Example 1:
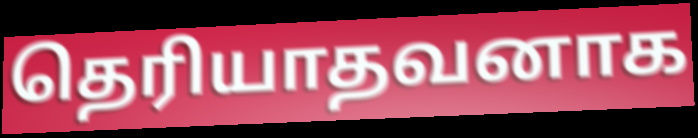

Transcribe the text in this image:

தெரியாதவனாக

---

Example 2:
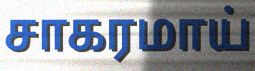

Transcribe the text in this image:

சாகரமாய்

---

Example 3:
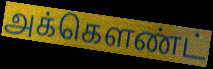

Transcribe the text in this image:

அக்கெளண்ட்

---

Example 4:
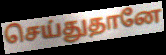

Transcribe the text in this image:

செய்துதானே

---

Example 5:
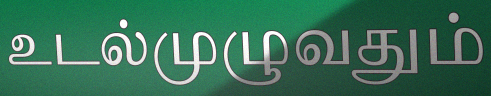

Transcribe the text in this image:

உடல்முழுவதும்